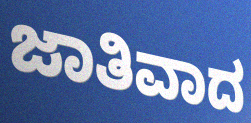
ಜಾತಿವಾದ